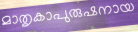
മാതൃകാപുരുഷനായ